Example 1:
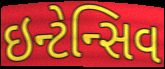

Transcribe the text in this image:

ઇન્ટેન્સિવ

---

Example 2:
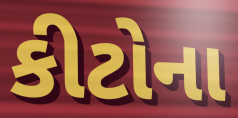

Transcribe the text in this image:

કીટોના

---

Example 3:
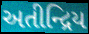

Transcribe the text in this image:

અતીન્દ્રિય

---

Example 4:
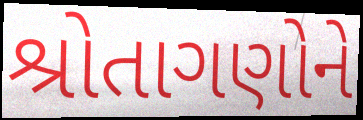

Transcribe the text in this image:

શ્રોતાગણોને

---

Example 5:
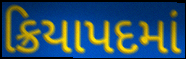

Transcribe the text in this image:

ક્રિયાપદમાં